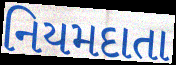
નિયમદાતા